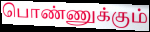
பொண்ணுக்கும்